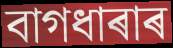
বাগধাৰাৰ